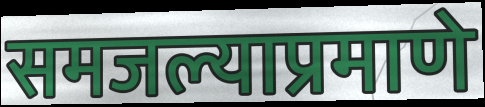
समजल्याप्रमाणे